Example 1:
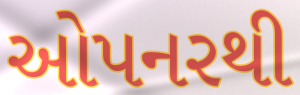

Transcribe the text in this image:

ઓપનરથી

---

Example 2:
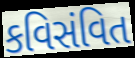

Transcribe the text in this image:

કવિસંવિત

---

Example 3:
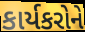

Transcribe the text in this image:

કાર્યકરોને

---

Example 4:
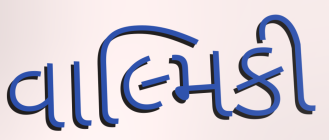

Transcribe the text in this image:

વાલ્મિકી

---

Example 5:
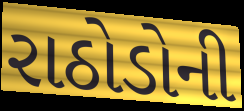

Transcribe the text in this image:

રાઠોડોની